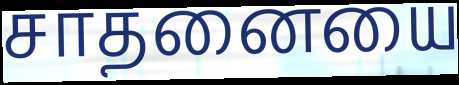
சாதனையை